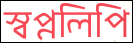
স্বপ্নলিপি